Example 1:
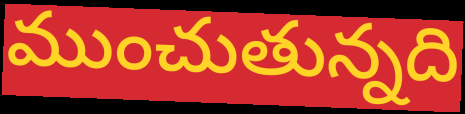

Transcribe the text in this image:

ముంచుతున్నది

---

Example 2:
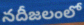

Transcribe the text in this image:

నదీజలంలో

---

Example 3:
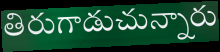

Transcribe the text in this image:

తిరుగాడుచున్నారు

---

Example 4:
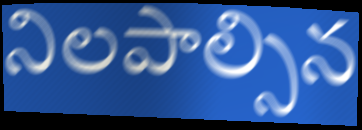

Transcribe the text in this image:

నిలపాల్సిన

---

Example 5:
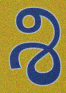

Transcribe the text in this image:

శి